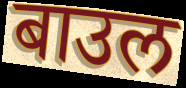
बाउल